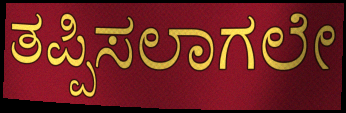
ತಪ್ಪಿಸಲಾಗಲೇ